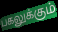
பகலுக்கும்